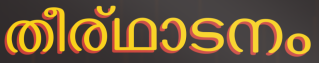
തീര്ഥാടനം